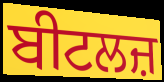
ਬੀਟਲਜ਼